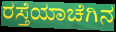
ರಸ್ತೆಯಾಚೆಗಿನ